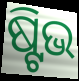
ଷ୍ଟିଭ